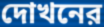
দোখনের